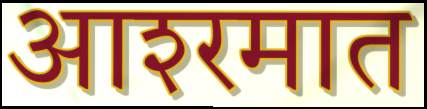
आश्रमात